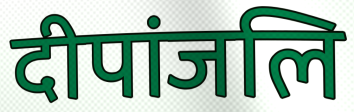
दीपांजलि